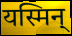
यस्मिन्